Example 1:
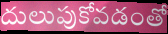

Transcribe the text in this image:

దులుపుకోవడంతో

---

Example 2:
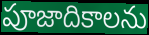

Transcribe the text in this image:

పూజాదికాలను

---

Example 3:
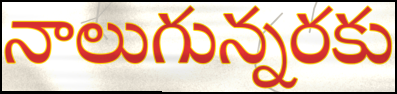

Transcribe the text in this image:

నాలుగున్నరకు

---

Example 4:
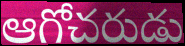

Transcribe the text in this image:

ఆగోచరుడు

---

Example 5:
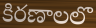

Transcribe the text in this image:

కిరణాలలొ